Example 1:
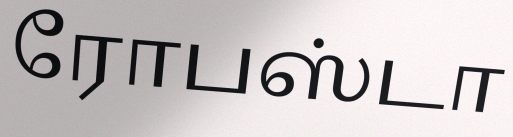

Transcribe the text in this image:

ரோபஸ்டா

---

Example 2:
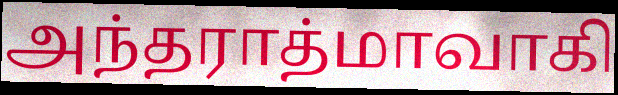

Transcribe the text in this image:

அந்தராத்மாவாகி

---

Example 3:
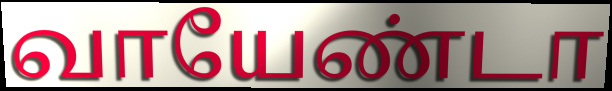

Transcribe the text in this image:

வாயேண்டா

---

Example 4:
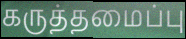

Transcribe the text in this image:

கருத்தமைப்பு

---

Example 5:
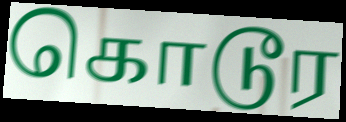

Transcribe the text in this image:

கொடூர